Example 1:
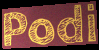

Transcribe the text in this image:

Podi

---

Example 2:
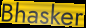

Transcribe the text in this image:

Bhasker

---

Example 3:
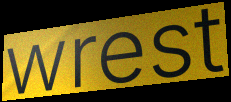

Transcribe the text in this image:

wrest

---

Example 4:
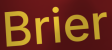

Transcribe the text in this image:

Brier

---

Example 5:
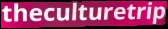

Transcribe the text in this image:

theculturetrip